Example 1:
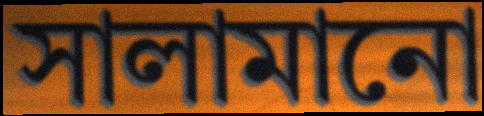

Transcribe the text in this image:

সালামানো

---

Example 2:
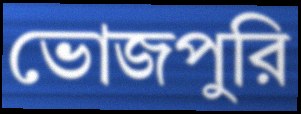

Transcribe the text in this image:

ভোজপুরি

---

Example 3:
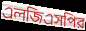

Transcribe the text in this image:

এলজিএসপির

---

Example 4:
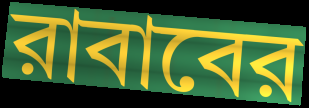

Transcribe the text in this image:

রাবাবের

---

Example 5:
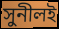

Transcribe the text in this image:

সুনীলই